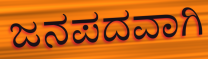
ಜನಪದವಾಗಿ